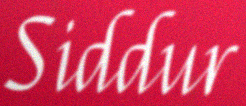
Siddur